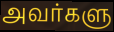
அவர்களு